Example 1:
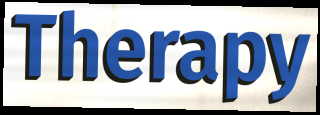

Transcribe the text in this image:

Therapy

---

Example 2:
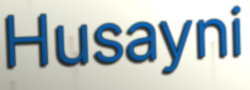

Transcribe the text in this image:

Husayni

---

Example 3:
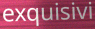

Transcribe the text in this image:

exquisivi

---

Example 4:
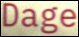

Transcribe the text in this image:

Dage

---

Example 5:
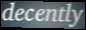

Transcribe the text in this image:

decently